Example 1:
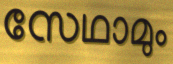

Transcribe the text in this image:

സേഥാമും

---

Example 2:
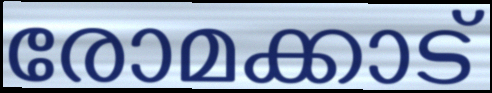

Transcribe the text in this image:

രോമക്കാട്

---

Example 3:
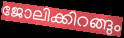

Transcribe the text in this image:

ജോലിക്കിറങ്ങും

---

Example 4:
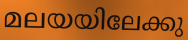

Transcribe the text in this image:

മലയയിലേക്കു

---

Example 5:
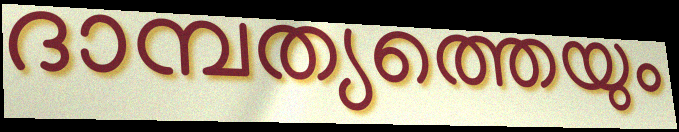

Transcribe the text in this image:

ദാമ്പത്യത്തെയും